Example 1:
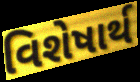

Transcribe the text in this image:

વિશેષાર્થ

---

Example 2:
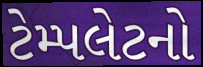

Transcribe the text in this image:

ટેમ્પલેટનો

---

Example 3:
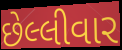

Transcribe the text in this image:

છેલ્લીવાર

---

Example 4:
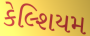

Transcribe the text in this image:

કેલ્શિયમ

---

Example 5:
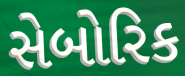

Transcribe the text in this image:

સેબોરિક